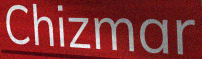
Chizmar